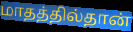
மாதத்தில்தான்